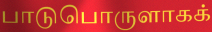
பாடுபொருளாகக்